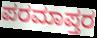
ಪರಮಾಪ್ತರ